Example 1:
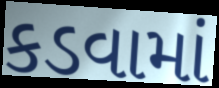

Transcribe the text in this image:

કડવામાં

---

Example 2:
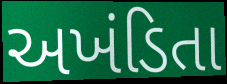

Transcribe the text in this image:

અખંડિતા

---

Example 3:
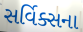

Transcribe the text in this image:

સર્વિક્સના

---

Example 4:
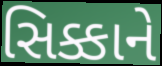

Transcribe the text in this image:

સિક્કાને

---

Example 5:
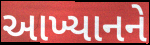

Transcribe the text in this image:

આખ્યાનને